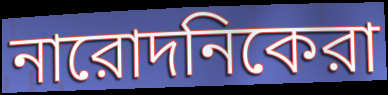
নারোদনিকেরা